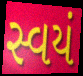
સ્વયં